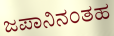
ಜಪಾನಿನಂತಹ